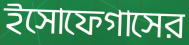
ইসোফেগাসের